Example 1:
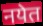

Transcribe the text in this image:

नयेत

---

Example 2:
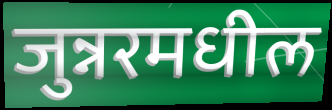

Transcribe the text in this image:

जुन्नरमधील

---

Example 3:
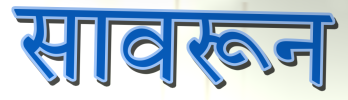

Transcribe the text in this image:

सावरून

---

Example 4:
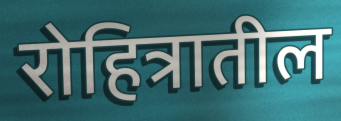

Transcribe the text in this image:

रोहित्रातील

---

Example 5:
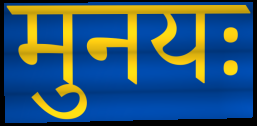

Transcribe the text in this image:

मुनयः